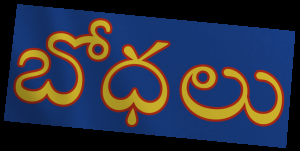
బోధలు